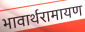
भावार्थरामायण